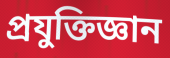
প্রযুক্তিজ্ঞান